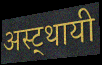
अस्ट्थायी